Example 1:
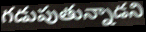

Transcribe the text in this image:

గడుపుతున్నాడని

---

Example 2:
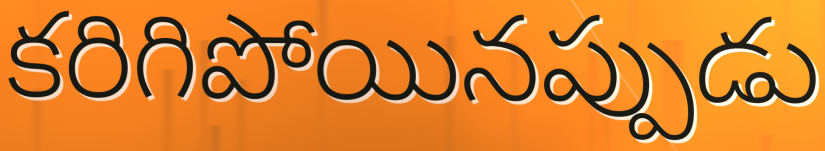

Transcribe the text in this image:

కరిగిపోయినప్పుడు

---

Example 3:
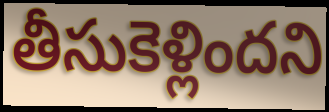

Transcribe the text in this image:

తీసుకెళ్లిందని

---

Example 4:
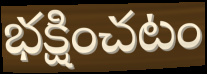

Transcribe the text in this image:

భక్షించటం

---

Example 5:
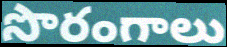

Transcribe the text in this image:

సొరంగాలు